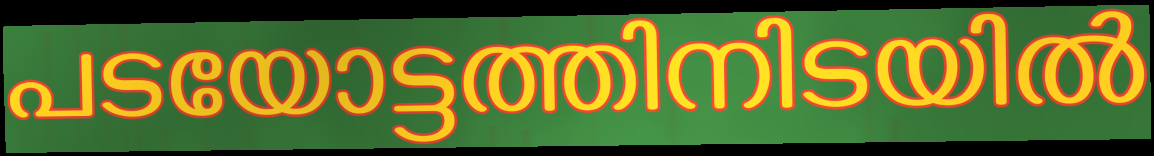
പടയോട്ടത്തിനിടയിൽ